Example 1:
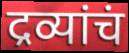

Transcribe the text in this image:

द्रव्यांचं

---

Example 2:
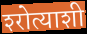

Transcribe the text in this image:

श्रोत्याशी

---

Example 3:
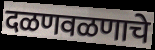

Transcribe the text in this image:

दळणवळणाचे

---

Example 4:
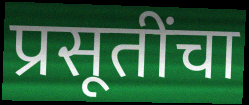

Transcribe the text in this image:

प्रसूतींचा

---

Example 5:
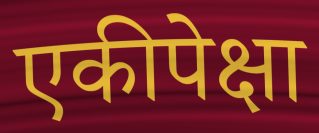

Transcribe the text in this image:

एकीपेक्षा